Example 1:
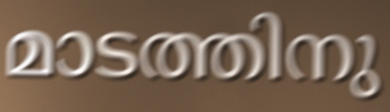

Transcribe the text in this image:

മാടത്തിനു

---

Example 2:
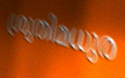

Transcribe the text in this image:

ശ്രുതിമധുര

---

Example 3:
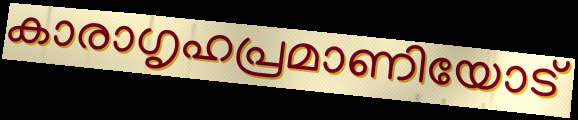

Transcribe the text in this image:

കാരാഗൃഹപ്രമാണിയോട്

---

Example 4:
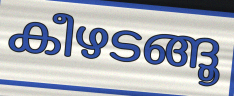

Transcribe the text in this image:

കീഴടങ്ങൂ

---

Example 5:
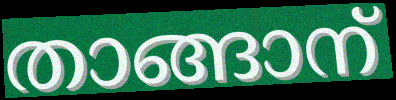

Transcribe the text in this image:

താങ്ങാന്